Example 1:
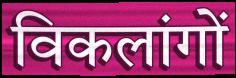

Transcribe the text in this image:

विकलांगों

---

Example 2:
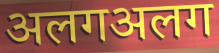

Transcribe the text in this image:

अलगअलग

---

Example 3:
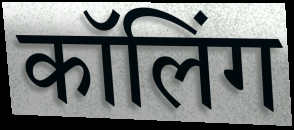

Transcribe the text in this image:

कॉलिंग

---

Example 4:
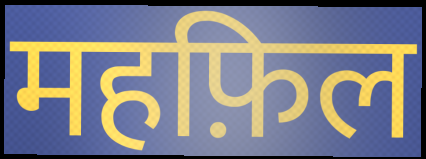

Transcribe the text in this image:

महफ़िल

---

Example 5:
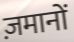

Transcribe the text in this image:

ज़मानों